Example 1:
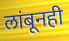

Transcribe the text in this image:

लांबूनही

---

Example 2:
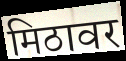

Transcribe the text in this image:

मिठावर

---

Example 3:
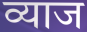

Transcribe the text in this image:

व्याज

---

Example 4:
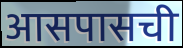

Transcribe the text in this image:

आसपासची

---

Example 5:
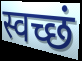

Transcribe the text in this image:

स्वच्छं